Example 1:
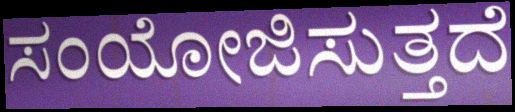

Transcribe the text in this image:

ಸಂಯೋಜಿಸುತ್ತದೆ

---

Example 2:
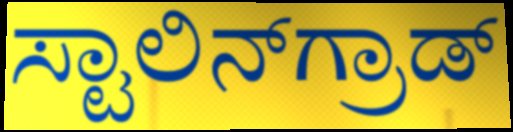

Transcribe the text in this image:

ಸ್ಟಾಲಿನ್‌ಗ್ರಾಡ್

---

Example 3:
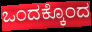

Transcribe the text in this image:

ಒಂದಕ್ಕೊಂದ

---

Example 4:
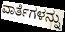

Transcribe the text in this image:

ವಾರ್ತೆಗಳನ್ನು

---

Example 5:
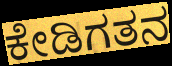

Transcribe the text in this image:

ಕೇಡಿಗತನ